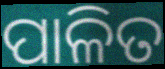
ପାଳିତ